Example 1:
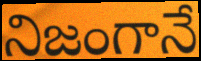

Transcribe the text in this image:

నిజంగానే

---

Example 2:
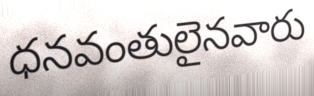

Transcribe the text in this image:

ధనవంతులైనవారు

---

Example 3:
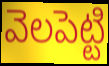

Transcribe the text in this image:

వెలపెట్టి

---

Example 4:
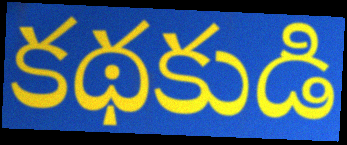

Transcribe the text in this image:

కథకుడి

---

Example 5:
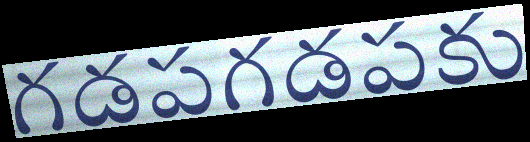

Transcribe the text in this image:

గడపగడపకు